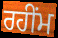
ਰਹੀਂਮ